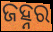
ଜହ୍ନର